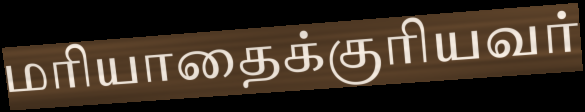
மரியாதைக்குரியவர்